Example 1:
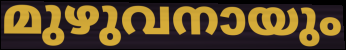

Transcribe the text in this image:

മുഴുവനായും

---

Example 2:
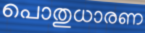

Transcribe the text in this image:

പൊതുധാരണ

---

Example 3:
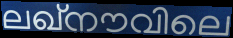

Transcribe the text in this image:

ലഖ്നൗവിലെ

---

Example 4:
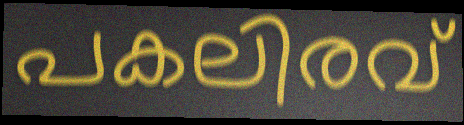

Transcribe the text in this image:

പകലിരവ്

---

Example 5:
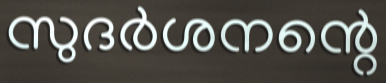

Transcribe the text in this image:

സുദർശനന്റെ